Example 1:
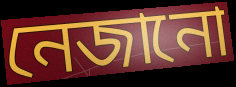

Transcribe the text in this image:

নেজানো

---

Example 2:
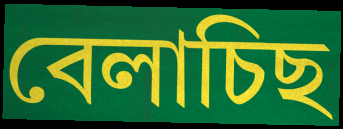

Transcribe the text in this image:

বেলাচিছ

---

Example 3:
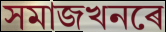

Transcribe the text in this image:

সমাজখনৰে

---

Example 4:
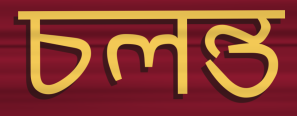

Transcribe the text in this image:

চলন্ত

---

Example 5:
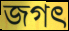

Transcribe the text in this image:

জগৎ